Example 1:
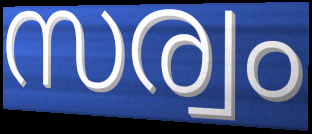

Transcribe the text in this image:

സര്വം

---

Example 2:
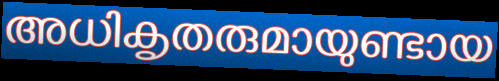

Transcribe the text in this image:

അധികൃതരുമായുണ്ടായ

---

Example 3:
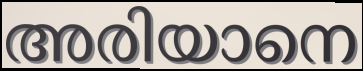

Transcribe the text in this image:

അരിയാനെ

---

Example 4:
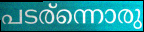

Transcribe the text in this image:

പടര്ന്നൊരു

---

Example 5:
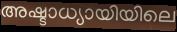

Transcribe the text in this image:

അഷ്ടാധ്യായിയിലെ